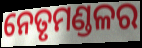
ନେତୃମଣ୍ଡଳର